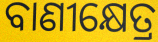
ବାଣୀକ୍ଷେତ୍ର